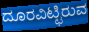
ದೂರವಿಟ್ಟಿರುವ